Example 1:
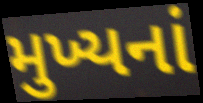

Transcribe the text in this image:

મુખ્યનાં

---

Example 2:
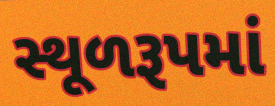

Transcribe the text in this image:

સ્થૂળરૂપમાં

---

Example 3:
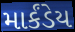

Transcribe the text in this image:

માર્કંડેય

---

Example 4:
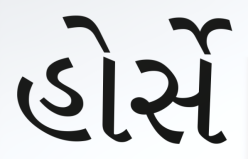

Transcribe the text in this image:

હોર્સે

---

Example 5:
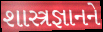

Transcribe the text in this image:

શાસ્ત્રજ્ઞાનને